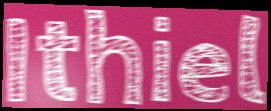
Ithiel